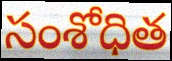
సంశోధిత